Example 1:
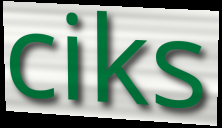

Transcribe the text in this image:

ciks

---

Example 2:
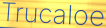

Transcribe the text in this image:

Trucaloe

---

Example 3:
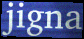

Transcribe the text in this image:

jigna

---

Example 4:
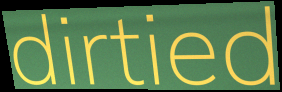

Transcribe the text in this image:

dirtied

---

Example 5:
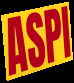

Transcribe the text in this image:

ASPI